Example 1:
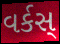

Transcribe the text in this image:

વર્કસ્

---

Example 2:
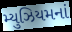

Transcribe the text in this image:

મ્યુઝિયમનાં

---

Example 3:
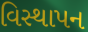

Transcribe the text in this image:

વિસ્થાપન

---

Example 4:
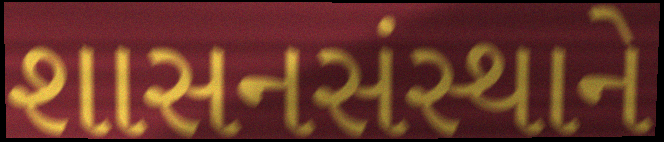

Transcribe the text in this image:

શાસનસંસ્થાને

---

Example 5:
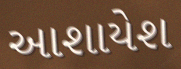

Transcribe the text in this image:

આશાયેશ